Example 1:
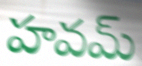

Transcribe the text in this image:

హవమ్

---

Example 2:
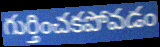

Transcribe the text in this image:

గుర్తించకపోవడం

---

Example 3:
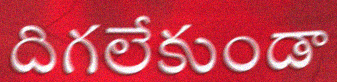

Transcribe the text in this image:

దిగలేకుండా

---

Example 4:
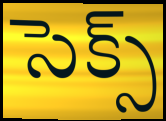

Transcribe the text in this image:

సెక్స్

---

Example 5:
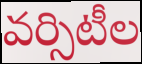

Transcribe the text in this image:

వర్సిటీల